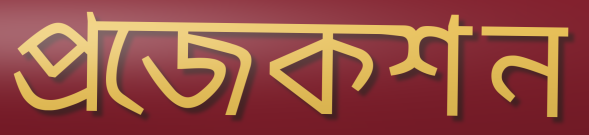
প্রজেকশন